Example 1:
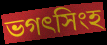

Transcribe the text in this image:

ভগৎসিংহ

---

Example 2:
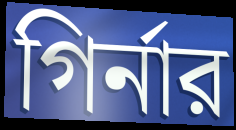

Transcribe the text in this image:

গির্নার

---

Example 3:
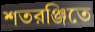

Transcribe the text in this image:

শতরঞ্জিতে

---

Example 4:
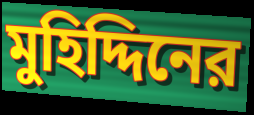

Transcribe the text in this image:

মুহিদ্দিনের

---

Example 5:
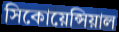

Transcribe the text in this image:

সিকোয়েন্সিয়াল